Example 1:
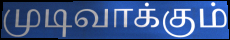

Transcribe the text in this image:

முடிவாக்கும்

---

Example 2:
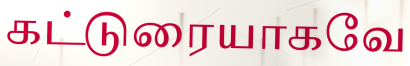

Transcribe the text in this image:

கட்டுரையாகவே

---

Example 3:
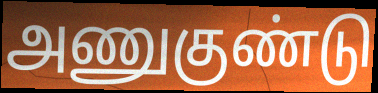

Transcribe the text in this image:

அணுகுண்டு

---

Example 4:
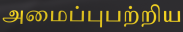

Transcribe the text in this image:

அமைப்புபற்றிய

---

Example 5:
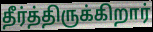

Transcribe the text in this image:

தீர்த்திருக்கிறார்